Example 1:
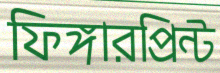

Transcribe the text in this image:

ফিঙ্গারপ্রিন্ট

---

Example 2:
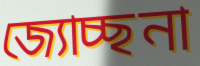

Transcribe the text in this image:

জ্যোচ্ছনা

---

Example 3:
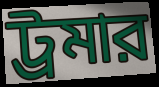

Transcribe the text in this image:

ট্রমার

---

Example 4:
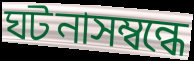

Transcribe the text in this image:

ঘটনাসম্বন্ধে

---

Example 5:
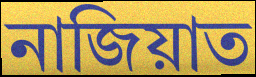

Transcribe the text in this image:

নাজিয়াত